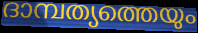
ദാമ്പത്യത്തെയും